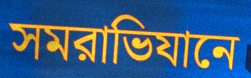
সমরাভিযানে